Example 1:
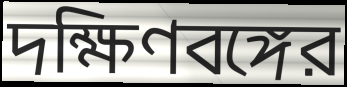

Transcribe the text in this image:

দক্ষিণবঙ্গের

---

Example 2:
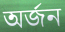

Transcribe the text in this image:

অর্জন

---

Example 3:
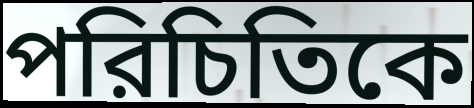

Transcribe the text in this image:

পরিচিতিকে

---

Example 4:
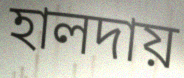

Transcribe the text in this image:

হালদায়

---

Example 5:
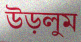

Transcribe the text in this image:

উড়লুম